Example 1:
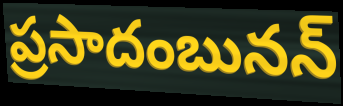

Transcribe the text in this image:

ప్రసాదంబునన్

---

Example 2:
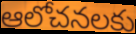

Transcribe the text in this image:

ఆలోచనలకు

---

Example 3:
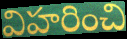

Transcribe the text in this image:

విహరించి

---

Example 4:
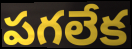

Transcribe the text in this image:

పగలేక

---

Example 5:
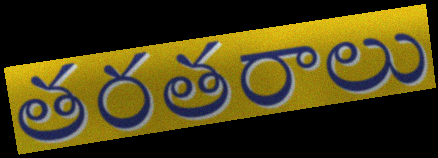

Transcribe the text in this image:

తరతరాలు